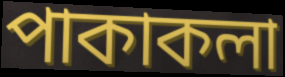
পাকাকলা